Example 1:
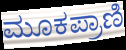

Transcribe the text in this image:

ಮೂಕಪ್ರಾಣಿ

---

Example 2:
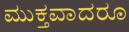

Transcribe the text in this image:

ಮುಕ್ತವಾದರೂ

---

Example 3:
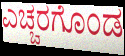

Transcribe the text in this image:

ಎಚ್ಚರಗೊಂಡ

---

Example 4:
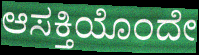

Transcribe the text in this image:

ಆಸಕ್ತಿಯೊಂದೇ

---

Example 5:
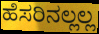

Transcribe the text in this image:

ಹೆಸರಿನಲ್ಲಲ್ಲ